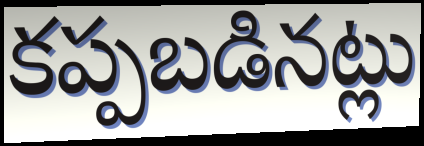
కప్పబడినట్లు